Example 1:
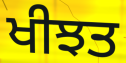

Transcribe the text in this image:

ਖੀਝਤ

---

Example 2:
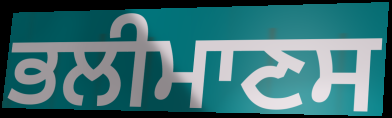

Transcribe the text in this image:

ਭਲੀਮਾਣਸ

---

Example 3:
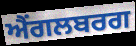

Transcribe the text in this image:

ਐਂਗਲਬਰਗ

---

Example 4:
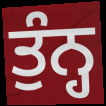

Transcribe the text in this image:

ਤੁੰਨ੍ਹ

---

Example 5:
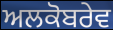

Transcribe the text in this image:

ਅਲਕੋਬਰੇਵ